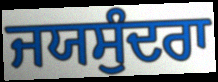
ਜਯਸੁੰਦਰਾ